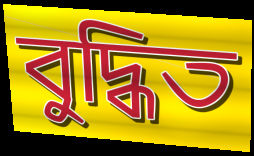
বুদ্ধিত